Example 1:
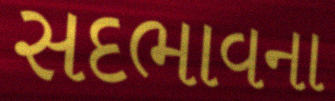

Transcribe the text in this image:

સદભાવના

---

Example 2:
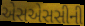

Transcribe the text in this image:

એસએસસીની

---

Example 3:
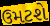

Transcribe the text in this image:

ઉમટશે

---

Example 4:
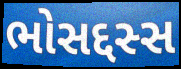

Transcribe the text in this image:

ભોસદ્દસ્સ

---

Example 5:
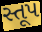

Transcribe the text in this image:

સ્તૂપ